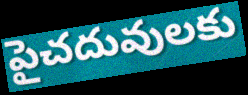
పైచదువులకు